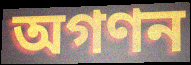
অগণন